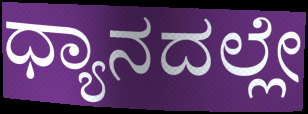
ಧ್ಯಾನದಲ್ಲೇ